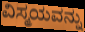
ವಿಸ್ಮಯವನ್ನು